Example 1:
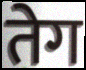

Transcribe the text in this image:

तेग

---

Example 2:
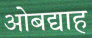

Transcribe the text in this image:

ओबद्याह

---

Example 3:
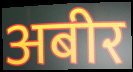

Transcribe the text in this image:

अबीर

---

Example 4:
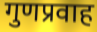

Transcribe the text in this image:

गुणप्रवाह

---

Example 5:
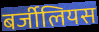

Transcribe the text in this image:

बर्जीलियस